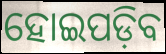
ହୋଇପଡ଼ିବ